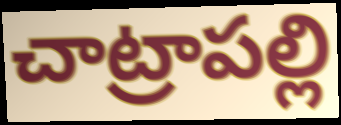
చాట్రాపల్లి